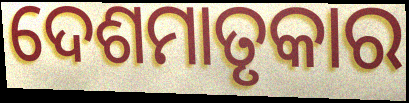
ଦେଶମାତୃକାର